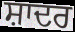
ਸ਼ਾਦਰ